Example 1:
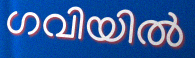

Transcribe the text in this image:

ഗവിയിൽ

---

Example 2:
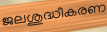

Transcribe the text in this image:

ജലശുദ്ധീകരണ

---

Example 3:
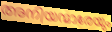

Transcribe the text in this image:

അനിയന്മാരേയും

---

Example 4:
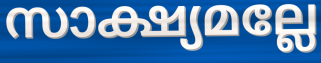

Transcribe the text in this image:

സാക്ഷ്യമല്ലേ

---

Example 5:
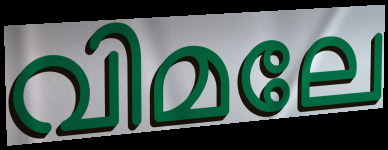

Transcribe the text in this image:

വിമലേ